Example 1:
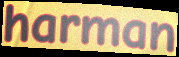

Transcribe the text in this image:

harman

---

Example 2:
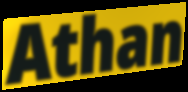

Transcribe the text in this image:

Athan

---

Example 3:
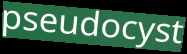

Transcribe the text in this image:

pseudocyst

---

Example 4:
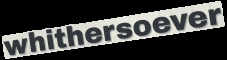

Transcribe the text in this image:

whithersoever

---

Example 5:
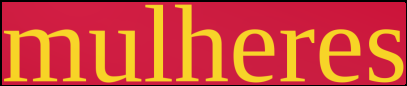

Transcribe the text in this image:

mulheres